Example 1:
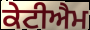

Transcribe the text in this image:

ਕੇਟੀਐਮ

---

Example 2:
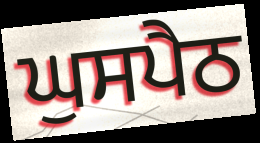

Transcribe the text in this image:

ਘੁਸਪੈਠ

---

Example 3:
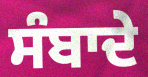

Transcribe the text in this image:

ਸੰਬਾਦੇ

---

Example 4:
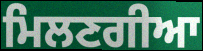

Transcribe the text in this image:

ਮਿਲਣਗੀਆ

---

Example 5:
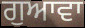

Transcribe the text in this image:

ਗੁਆਵਾ